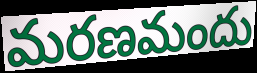
మరణమందు